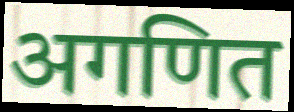
अगणित